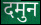
दमुन